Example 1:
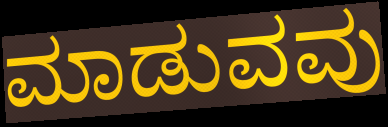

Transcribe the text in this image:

ಮಾಡುವವು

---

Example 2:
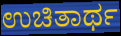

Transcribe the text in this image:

ಉಚಿತಾರ್ಥ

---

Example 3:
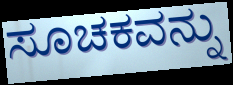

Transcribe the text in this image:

ಸೂಚಕವನ್ನು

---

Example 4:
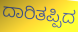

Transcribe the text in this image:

ದಾರಿತಪ್ಪಿದ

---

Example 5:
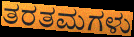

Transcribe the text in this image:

ತರತಮಗಳು